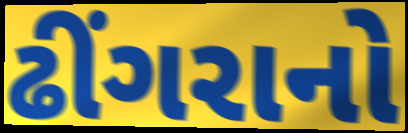
ઢીંગરાનો